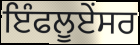
ਇੰਫਲੂਏਂਸਰ